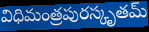
విధిమంత్రపురస్కృతమ్